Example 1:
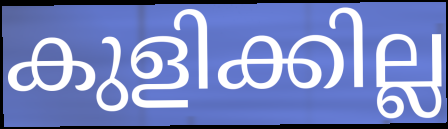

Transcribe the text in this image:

കുളിക്കില്ല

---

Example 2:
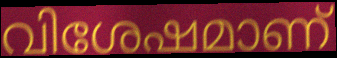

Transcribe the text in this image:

വിശേഷമാണ്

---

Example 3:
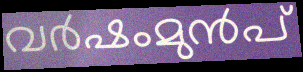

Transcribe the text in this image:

വർഷംമുൻപ്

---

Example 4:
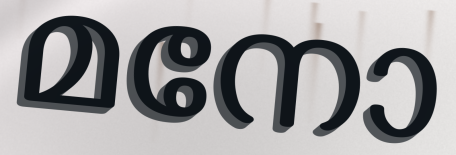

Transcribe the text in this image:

മനോ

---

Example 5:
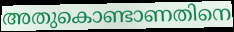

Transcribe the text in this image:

അതുകൊണ്ടാണതിനെ